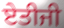
ਏਤੀਜੀ